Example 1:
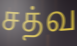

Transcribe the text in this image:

சத்வ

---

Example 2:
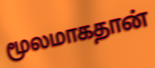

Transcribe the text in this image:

மூலமாகதான்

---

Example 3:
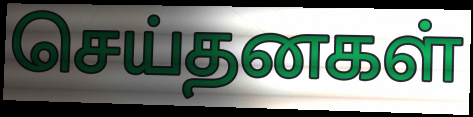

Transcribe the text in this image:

செய்தனகள்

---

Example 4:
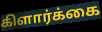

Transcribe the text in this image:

கிளார்க்கை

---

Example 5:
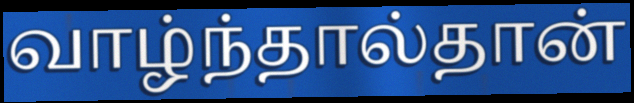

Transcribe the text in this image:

வாழ்ந்தால்தான்